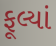
ફૂલ્યાં